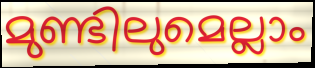
മുണ്ടിലുമെല്ലാം